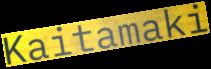
Kaitamaki